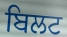
ਬਿਲਟ